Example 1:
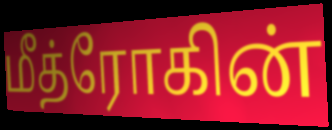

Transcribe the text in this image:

மீத்ரோகின்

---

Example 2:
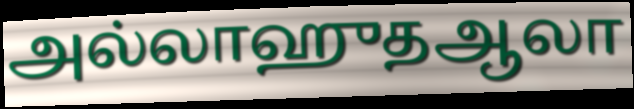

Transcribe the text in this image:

அல்லாஹுதஆலா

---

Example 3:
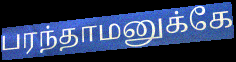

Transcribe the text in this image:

பரந்தாமனுக்கே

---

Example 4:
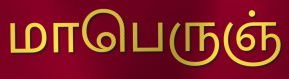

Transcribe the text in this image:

மாபெருஞ்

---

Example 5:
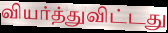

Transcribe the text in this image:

வியர்த்துவிட்டது